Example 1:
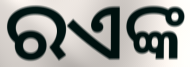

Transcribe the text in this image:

ରଏଙ୍କ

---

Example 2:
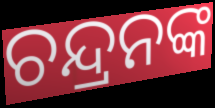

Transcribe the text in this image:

ଚନ୍ଦ୍ରନଙ୍କ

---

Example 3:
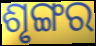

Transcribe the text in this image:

ଶୃଙ୍ଗର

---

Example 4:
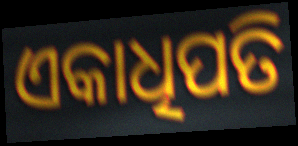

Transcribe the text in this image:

ଏକାଧିପତି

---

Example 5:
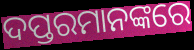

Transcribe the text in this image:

ଦପ୍ତରମାନଙ୍କରେ